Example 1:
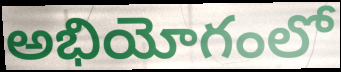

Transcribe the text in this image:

అభియోగంలో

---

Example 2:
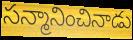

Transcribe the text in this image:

సన్మానించినాడు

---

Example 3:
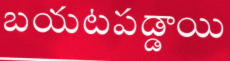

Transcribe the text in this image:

బయటపడ్డాయి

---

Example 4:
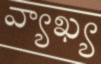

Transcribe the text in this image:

వ్యాఖ్య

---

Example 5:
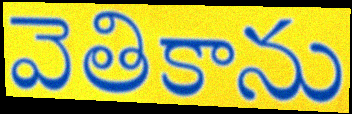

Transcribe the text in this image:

వెతికాను